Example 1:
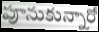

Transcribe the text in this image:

పూనుకున్నారో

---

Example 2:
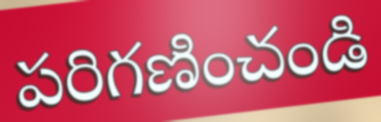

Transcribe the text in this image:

పరిగణించండి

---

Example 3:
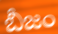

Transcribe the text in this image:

బీజం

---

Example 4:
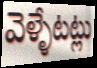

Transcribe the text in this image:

వెళ్ళేటట్లు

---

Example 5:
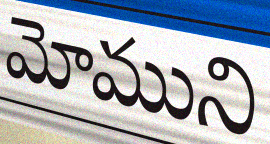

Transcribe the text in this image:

మోముని